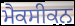
ਮੈਕਸੀਕਨ